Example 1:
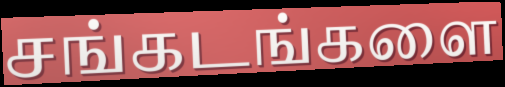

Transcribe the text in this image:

சங்கடங்களை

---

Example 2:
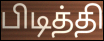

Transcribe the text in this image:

பிடித்தி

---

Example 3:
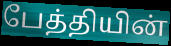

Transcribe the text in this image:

பேத்தியின்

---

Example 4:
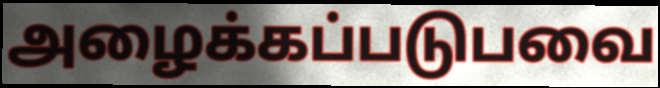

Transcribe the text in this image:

அழைக்கப்படுபவை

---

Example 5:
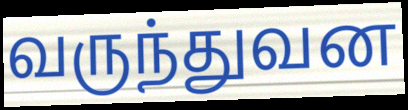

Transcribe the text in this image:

வருந்துவன